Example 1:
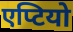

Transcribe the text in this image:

एप्टियो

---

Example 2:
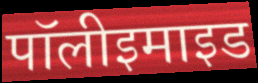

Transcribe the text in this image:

पॉलीइमाइड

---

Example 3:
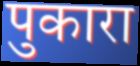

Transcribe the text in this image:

पुकारा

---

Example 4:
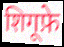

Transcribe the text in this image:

शिगूफ़े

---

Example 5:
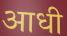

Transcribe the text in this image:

आधी